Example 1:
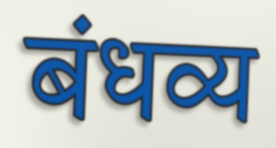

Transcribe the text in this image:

बंधव्य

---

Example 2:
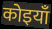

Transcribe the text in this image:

कोइयाँ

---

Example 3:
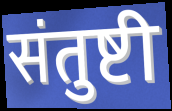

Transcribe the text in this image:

संतुष्टी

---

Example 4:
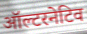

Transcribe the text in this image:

ऑल्टरनेटिव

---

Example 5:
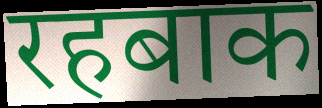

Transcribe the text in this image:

रहबाक